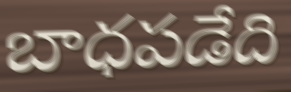
బాధపడేది